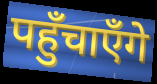
पहुँचाएँगे